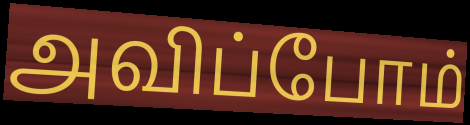
அவிப்போம்